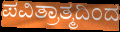
ಪವಿತ್ರಾತ್ಮದಿಂದ